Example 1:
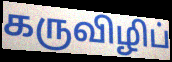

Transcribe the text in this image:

கருவிழிப்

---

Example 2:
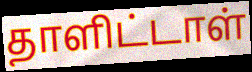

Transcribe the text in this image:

தாளிட்டாள்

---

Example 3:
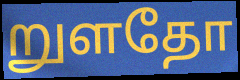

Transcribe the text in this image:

றுளதோ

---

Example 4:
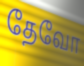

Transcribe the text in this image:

தேவோ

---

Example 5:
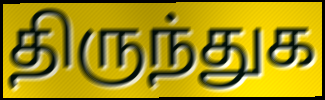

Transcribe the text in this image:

திருந்துக